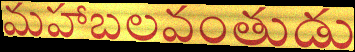
మహాబలవంతుడు